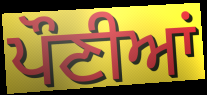
ਪੌਣੀਆਂ